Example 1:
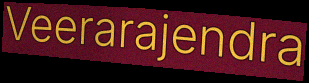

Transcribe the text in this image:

Veerarajendra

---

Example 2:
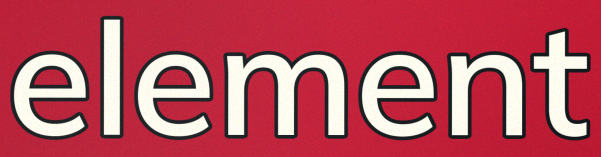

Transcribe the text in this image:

element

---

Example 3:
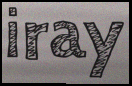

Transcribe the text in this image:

iray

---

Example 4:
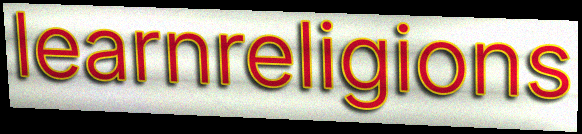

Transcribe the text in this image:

learnreligions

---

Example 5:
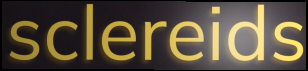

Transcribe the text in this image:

sclereids